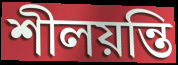
শীলয়ন্তি